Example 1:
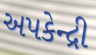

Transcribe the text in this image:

અપકેન્દ્રી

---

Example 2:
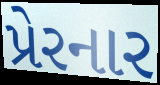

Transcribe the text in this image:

પ્રેરનાર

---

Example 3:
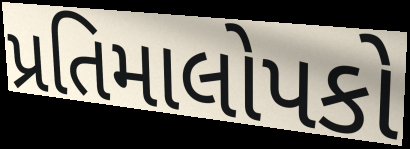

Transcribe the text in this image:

પ્રતિમાલોપકો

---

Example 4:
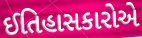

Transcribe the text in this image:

ઈતિહાસકારોએ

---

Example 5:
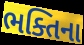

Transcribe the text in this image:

ભક્તિના